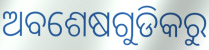
ଅବଶେଷଗୁଡିକରୁ